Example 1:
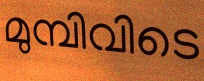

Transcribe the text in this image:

മുമ്പിവിടെ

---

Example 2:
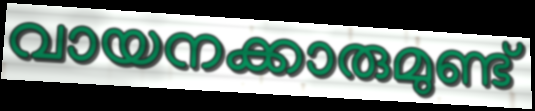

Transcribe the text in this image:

വായനക്കാരുമുണ്ട്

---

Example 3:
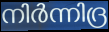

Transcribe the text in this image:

നിർന്നിദ്ര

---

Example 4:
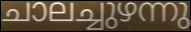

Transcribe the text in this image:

ചാലച്ചുഴന്നു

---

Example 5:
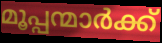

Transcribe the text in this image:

മൂപ്പന്മാർക്ക്